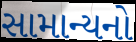
સામાન્યનો